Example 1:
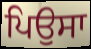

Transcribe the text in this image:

ਪਿਉਸਾ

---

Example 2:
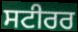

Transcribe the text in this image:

ਸਟੀਰਰ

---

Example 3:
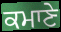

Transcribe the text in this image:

ਕਮਾਣੇ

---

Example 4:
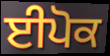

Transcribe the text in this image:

ਈਪੋਕ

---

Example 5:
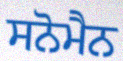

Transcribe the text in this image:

ਸਨੋਮੈਨ